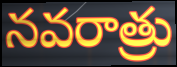
నవరాత్రు